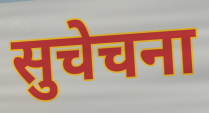
सुचेचना